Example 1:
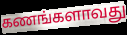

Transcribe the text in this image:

கணங்களாவது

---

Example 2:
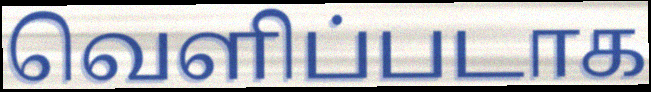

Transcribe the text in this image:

வெளிப்படாக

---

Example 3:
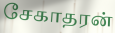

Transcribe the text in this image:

சேகாதரன்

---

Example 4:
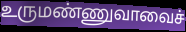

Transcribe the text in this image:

உருமண்ணுவாவைச்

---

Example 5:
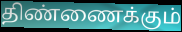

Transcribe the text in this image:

திண்ணைக்கும்